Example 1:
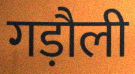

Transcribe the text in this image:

गड़ौली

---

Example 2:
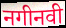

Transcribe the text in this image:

नगीनवी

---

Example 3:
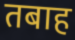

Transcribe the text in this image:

तबाह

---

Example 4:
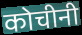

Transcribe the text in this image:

कोचीनी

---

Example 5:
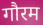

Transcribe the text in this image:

गौरम